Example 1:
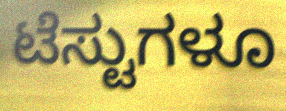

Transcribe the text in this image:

ಟೆಸ್ಟುಗಳೂ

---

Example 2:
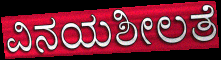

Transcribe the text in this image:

ವಿನಯಶೀಲತೆ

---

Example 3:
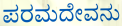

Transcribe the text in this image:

ಪರಮದೇವನು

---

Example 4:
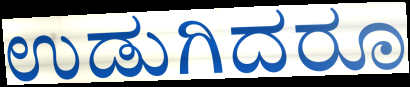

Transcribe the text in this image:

ಉಡುಗಿದರೂ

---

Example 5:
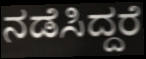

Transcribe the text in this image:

ನಡೆಸಿದ್ದರೆ